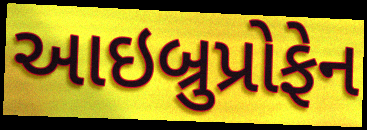
આઇબ્રુપ્રોફેન